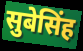
सुबेसिंह